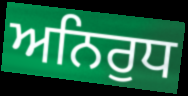
ਅਨਿਰੁਧ